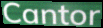
Cantor